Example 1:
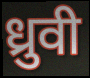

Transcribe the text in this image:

ध्रुवी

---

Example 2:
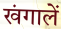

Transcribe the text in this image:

खंगालें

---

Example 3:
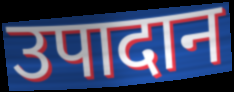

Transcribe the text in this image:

उपादान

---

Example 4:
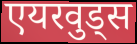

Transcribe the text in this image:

एयरवुड्स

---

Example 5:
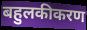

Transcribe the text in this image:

बहुलकीकरण